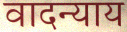
वादन्याय